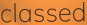
classed